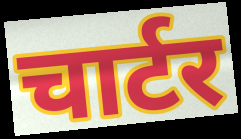
चार्टर